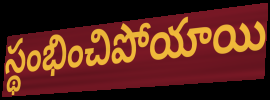
స్థంభించిపోయాయి